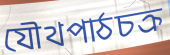
যৌথপাঠচক্র